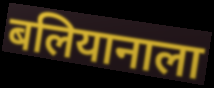
बलियानाला